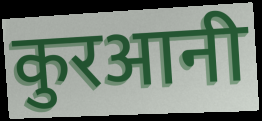
कुरआनी